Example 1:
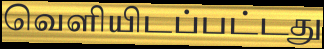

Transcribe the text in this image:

வெளியிடப்பட்டது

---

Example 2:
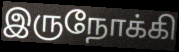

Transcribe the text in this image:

இருநோக்கி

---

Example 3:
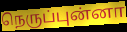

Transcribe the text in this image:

நெருப்புன்னா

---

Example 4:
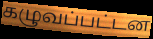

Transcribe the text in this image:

கழுவப்பட்டன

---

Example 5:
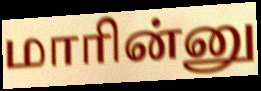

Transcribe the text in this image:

மாரின்னு